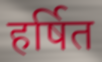
हर्षित